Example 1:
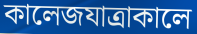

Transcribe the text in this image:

কালেজযাত্রাকালে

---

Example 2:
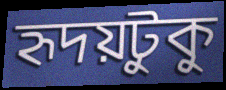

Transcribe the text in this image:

হৃদয়টুকু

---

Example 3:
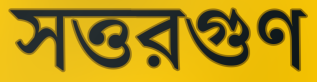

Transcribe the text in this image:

সত্তরগুণ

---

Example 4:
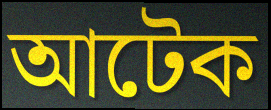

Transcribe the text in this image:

আটেক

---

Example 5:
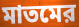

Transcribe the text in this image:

মাতমের